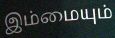
இம்மையும்